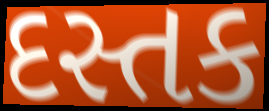
દસ્તક